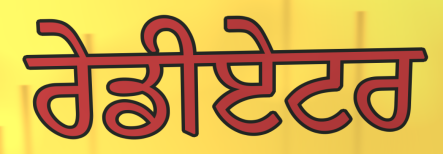
ਰੇਡੀਏਟਰ